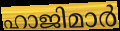
ഹാജിമാർ